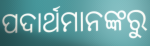
ପଦାର୍ଥମାନଙ୍କରୁ